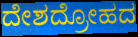
ದೇಶದ್ರೋಹದ